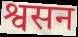
श्वसन